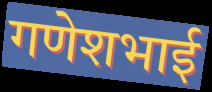
गणेशभाई